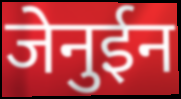
जेनुईन